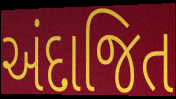
અંદાજિત